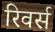
रिवर्स